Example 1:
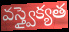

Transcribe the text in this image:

వస్త్వైక్యత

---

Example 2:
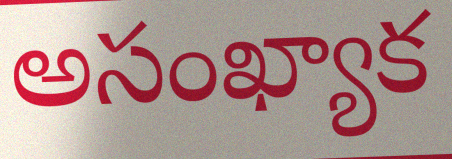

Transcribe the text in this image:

అసంఖ్యాక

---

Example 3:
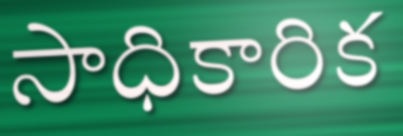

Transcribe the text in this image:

సాధికారిక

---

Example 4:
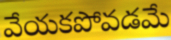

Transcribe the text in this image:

వేయకపోవడమే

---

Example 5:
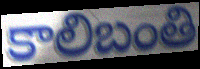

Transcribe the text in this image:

కాలిబంతి